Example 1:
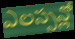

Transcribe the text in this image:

ఎలస్సన్లో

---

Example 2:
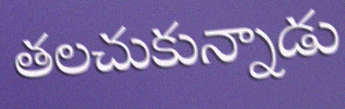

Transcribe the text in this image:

తలచుకున్నాడు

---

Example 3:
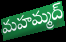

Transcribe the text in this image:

మహమ్మద్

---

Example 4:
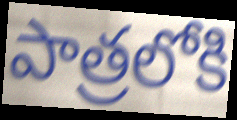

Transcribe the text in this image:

పాత్రలోకి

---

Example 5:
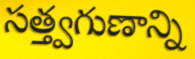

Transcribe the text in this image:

సత్త్వగుణాన్ని